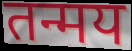
तन्‍मय